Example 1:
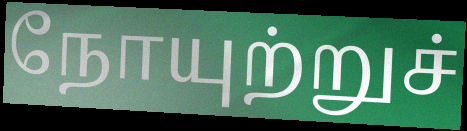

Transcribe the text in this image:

நோயுற்றுச்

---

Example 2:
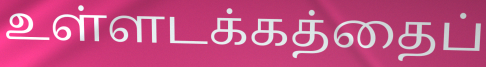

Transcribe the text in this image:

உள்ளடக்கத்தைப்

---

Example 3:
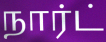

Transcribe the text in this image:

நார்ட்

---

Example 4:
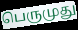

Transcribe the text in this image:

பெருமுது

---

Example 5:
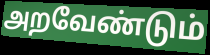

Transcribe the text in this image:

அறவேண்டும்